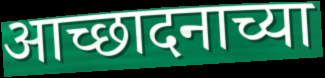
आच्छादनाच्या